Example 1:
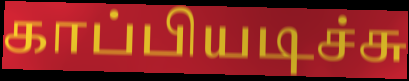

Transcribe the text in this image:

காப்பியடிச்சு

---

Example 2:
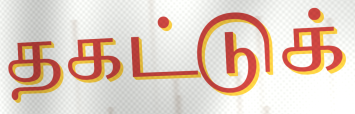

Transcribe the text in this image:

தகட்டுக்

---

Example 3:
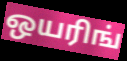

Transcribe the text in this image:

ஒயரிங்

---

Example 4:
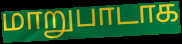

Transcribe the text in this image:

மாறுபாடாக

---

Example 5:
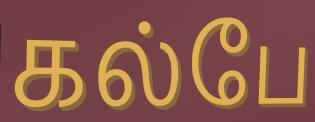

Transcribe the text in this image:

கல்பே